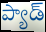
ప్యాడ్